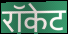
रॉकेट